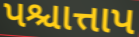
પશ્ચાત્તાપ